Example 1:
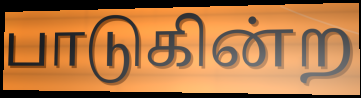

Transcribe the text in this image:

பாடுகின்ற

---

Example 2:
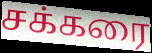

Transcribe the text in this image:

சக்கரை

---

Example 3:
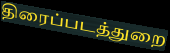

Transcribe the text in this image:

திரைப்படத்துறை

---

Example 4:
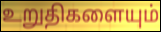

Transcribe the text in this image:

உறுதிகளையும்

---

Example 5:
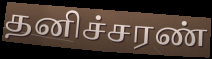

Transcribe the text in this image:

தனிச்சரண்